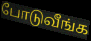
போடுவீங்க